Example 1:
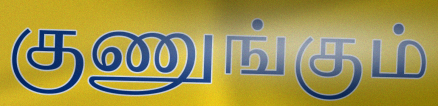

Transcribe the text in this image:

குணுங்கும்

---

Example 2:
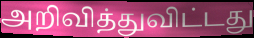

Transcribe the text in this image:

அறிவித்துவிட்டது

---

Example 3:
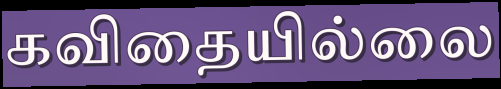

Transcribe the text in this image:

கவிதையில்லை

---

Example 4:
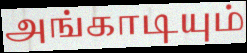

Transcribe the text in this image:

அங்காடியும்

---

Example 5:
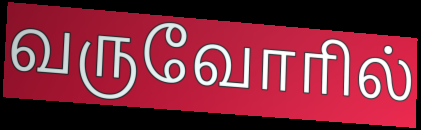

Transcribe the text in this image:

வருவோரில்